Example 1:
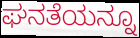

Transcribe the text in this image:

ಘನತೆಯನ್ನೂ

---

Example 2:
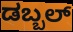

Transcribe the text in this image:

ಡಬ್ಬಲ್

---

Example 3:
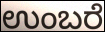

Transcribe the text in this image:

ಉಂಬರೆ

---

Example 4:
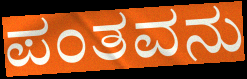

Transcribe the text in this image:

ಪಂತವನು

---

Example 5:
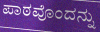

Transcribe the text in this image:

ಪಾಠವೊಂದನ್ನು